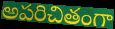
అపరిచితంగా